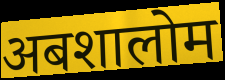
अबशालोम